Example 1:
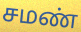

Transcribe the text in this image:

சமண்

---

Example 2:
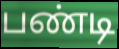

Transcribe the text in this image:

பண்டி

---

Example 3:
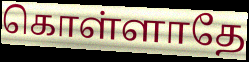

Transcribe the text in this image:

கொள்ளாதே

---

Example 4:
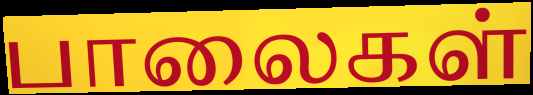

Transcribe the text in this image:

பாலைகள்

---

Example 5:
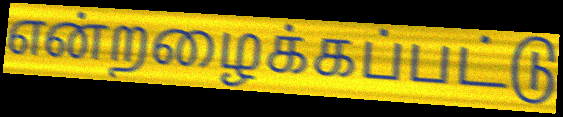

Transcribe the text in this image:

என்றழைக்கப்பட்டு